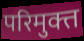
परिमुक्त